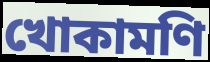
খোকামণি